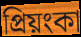
প্ৰিয়ংকা